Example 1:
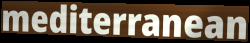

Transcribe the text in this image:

mediterranean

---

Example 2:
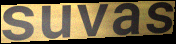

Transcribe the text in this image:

suvas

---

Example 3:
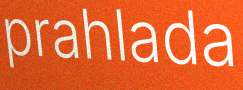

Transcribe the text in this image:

prahlada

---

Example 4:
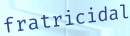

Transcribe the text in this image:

fratricidal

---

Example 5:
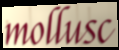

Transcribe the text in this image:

mollusc